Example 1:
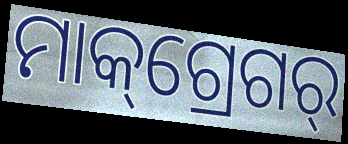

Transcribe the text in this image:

ମାକ୍‌ଗ୍ରେଗର୍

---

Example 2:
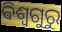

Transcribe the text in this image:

ଵିଶ୍ଵଗୁରୁ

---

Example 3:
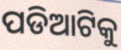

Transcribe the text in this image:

ପଡିଆଟିକୁ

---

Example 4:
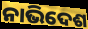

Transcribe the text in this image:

ନାଭିଦେଶ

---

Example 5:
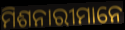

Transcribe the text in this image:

ମିଶନାରୀମାନେ